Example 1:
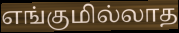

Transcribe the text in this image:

எங்குமில்லாத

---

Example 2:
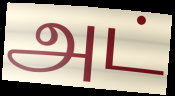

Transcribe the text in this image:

அட்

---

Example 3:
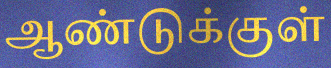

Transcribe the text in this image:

ஆண்டுக்குள்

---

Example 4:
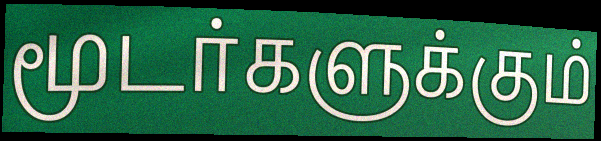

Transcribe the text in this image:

மூடர்களுக்கும்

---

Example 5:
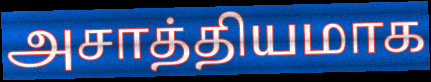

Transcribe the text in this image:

அசாத்தியமாக